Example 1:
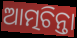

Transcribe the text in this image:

ଆତ୍ମଚିନ୍ତା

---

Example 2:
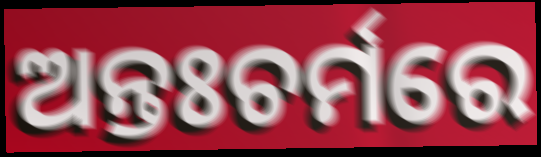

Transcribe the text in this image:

ଅନ୍ତଃଚର୍ମରେ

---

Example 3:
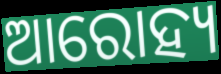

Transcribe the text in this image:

ଆରୋହ୍ୟ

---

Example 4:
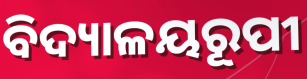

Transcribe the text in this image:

ବିଦ୍ୟାଳୟରୂପୀ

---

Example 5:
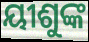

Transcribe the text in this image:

ୟୀଶୁଙ୍କ